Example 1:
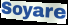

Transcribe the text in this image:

Soyare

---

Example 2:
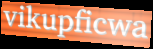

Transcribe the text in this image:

vikupficwa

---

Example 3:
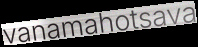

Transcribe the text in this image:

vanamahotsava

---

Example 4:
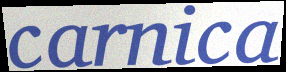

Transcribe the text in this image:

carnica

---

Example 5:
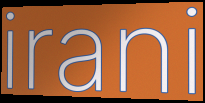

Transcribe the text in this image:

irani